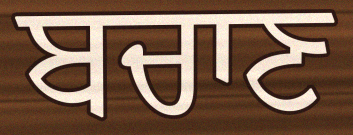
ਬਚਾਣ